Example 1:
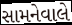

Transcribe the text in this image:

સામનેવાલે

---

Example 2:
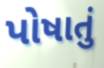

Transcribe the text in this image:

પોષાતું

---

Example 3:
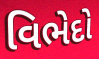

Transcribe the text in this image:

વિભેદો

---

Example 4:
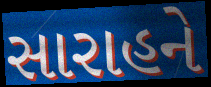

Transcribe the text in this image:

સારાહને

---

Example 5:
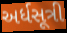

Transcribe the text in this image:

અર્ધસૂત્રી